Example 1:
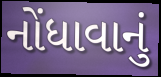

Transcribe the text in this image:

નોંધાવાનું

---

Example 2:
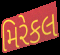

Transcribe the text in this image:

મિરેકલ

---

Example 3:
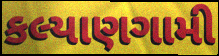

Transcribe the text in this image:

કલ્યાણગામી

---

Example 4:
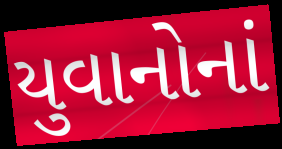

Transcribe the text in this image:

યુવાનોનાં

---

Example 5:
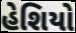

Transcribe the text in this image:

હેશિયો